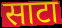
साटा